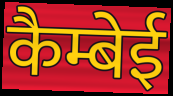
कैम्बेई